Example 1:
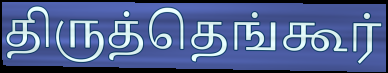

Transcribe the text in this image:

திருத்தெங்கூர்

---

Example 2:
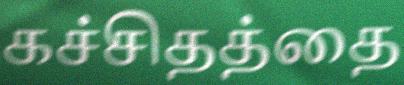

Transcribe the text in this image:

கச்சிதத்தை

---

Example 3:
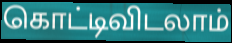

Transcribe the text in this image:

கொட்டிவிடலாம்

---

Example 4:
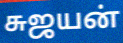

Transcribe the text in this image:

சுஜயன்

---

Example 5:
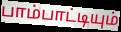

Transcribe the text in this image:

பாம்பாட்டியும்